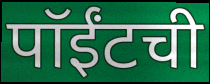
पॉईंटची